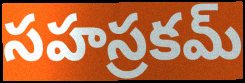
సహస్రకమ్